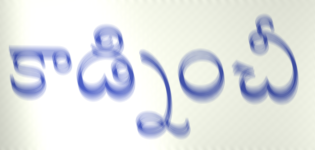
కాడ్నించీ